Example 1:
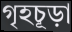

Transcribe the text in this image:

গৃহচূড়া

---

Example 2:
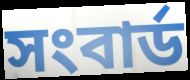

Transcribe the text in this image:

সংবার্ড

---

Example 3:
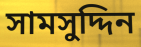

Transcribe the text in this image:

সামসুদ্দিন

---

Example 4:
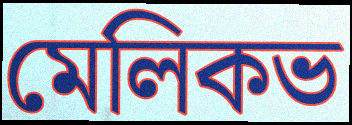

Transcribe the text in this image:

মেলিকভ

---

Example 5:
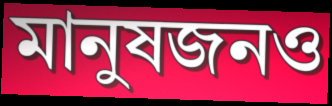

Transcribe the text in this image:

মানুষজনও